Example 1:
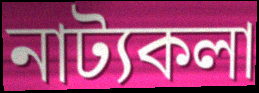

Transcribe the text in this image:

নাট্যকলা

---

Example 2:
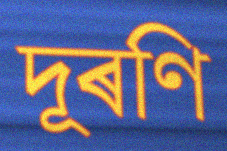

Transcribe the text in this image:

দূৰণি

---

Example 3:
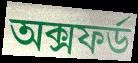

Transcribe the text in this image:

অক্সফৰ্ড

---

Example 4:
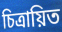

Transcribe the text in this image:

চিত্ৰায়িত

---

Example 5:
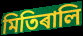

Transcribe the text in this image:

মিতিৰালি